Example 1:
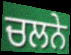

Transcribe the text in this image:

ਚਲਨੇ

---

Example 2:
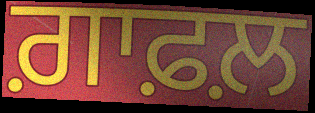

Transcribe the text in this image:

ਗ਼ਾਫ਼ਲ਼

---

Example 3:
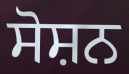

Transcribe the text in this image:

ਸੋਸ਼ਨ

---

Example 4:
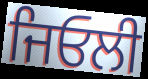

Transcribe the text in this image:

ਜਿਓਲੀ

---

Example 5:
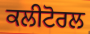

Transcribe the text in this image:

ਕਲੀਟੋਰਲ